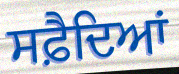
ਸਫ਼ੈਦਿਆਂ